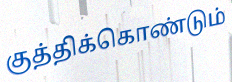
குத்திக்கொண்டும்